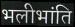
भलीभांति